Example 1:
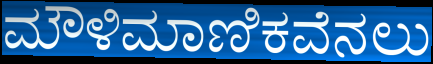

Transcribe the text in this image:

ಮೌಳಿಮಾಣಿಕವೆನಲು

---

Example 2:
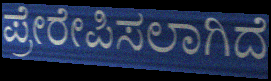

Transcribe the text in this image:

ಪ್ರೇರೇಪಿಸಲಾಗಿದೆ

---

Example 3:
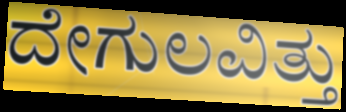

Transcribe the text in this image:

ದೇಗುಲವಿತ್ತು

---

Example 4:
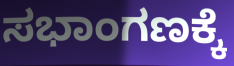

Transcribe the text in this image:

ಸಭಾಂಗಣಕ್ಕೆ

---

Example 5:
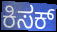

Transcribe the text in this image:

ಕಿಸಕ್